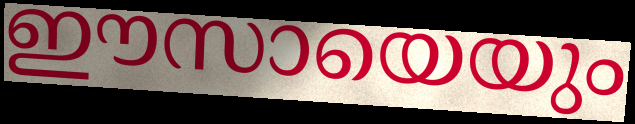
ഈസായെയും